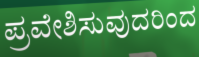
ಪ್ರವೇಶಿಸುವುದರಿಂದ